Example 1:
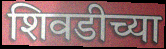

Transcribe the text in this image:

शिवडीच्या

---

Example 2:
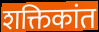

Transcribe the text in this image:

शक्तिकांत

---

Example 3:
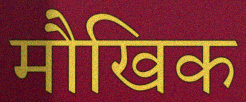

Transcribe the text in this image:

मौखिक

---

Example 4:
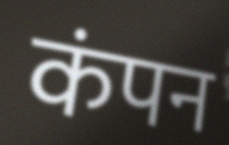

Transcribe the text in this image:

कंपन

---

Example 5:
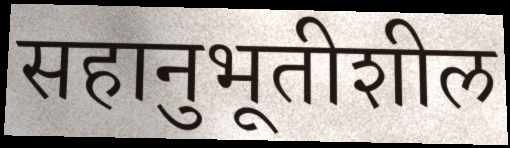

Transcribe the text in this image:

सहानुभूतीशील